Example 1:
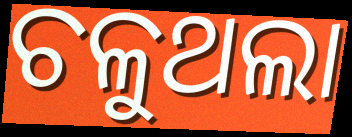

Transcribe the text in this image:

ଚଳୁଥଲା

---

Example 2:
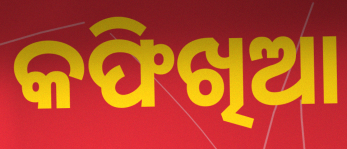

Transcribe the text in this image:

କଫିଖିଆ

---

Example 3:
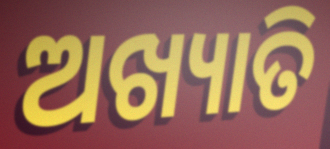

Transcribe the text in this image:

ଅଖ୍ୟାତି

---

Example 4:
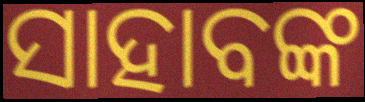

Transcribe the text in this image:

ସାହାବଙ୍କ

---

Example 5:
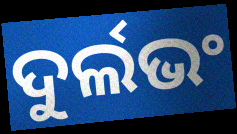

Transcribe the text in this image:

ଦୁର୍ଲଭଂ